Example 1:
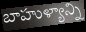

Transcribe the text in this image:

బాహుళ్యాన్ని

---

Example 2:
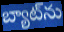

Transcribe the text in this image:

బ్యాట్‌ను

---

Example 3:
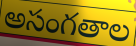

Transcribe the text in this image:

అసంగతాల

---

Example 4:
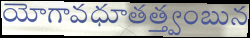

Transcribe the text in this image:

యోగావధూతత్త్వంబున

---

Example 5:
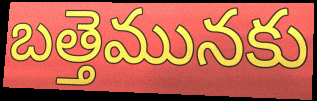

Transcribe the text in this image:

బత్తెమునకు